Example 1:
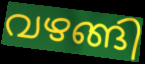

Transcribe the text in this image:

വഴങ്ങി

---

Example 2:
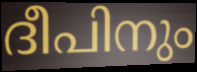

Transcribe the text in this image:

ദീപിനും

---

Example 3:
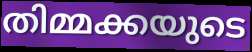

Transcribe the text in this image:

തിമ്മക്കയുടെ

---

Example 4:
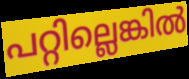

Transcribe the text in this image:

പറ്റില്ലെങ്കിൽ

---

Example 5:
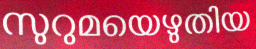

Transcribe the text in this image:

സുറുമയെഴുതിയ